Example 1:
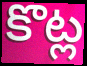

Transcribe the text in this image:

కొట్ల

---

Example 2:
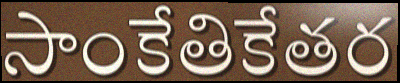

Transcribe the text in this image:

సాంకేతికేతర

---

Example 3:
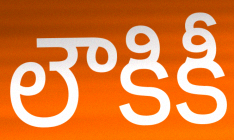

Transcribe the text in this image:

లౌకికీ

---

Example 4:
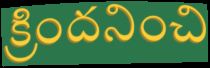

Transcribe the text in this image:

క్రిందనించి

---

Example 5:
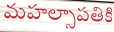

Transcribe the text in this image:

మహల్సాపతికి